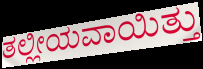
ತಲ್ಲೀಯವಾಯಿತ್ತು